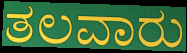
ತಲವಾರು